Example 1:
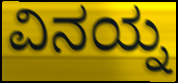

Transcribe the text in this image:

ವಿನಯ್ನ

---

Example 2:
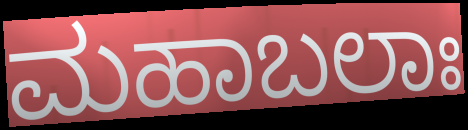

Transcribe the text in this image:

ಮಹಾಬಲಾಃ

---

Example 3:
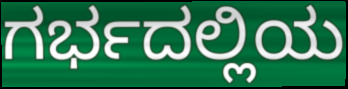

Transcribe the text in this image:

ಗರ್ಭದಲ್ಲಿಯ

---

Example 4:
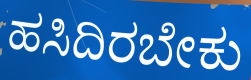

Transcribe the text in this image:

ಹಸಿದಿರಬೇಕು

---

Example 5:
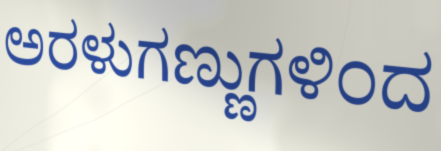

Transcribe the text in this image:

ಅರಳುಗಣ್ಣುಗಳಿಂದ